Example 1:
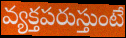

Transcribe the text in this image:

వ్యక్తపరుస్తుంటే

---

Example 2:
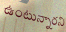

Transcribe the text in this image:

ఉంటున్నారని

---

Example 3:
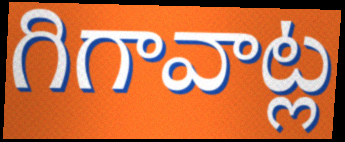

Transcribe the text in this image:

గిగావాట్ల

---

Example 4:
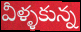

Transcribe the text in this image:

వీళ్ళకున్న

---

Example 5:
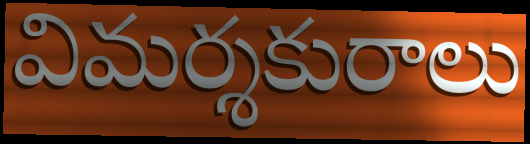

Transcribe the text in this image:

విమర్శకురాలు